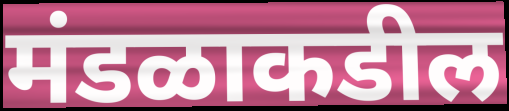
मंडळाकडील